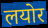
लयोर